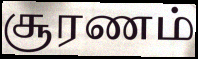
சூரணம்